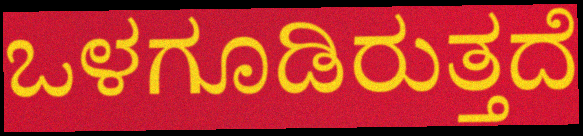
ಒಳಗೂಡಿರುತ್ತದೆ